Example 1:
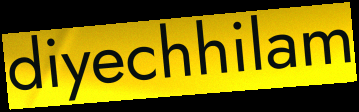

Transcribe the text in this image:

diyechhilam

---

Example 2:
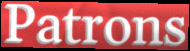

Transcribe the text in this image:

Patrons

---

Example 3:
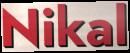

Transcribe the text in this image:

Nikal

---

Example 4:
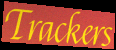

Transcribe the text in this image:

Trackers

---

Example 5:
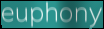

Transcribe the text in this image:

euphony